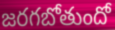
జరగబోతుందో